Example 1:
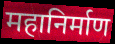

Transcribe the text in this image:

महानिर्माण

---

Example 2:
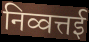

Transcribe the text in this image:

निव्वत्तई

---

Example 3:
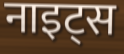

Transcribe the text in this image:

नाइट्स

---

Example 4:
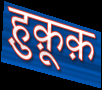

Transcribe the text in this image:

ह़ुक़ूक़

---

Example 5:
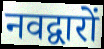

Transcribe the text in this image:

नवद्वारों